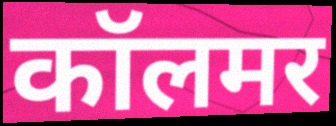
कॉलमर